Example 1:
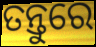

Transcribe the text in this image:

ତନ୍ତୁରେ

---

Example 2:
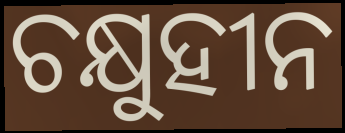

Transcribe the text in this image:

ଚକ୍ଷୁହୀନ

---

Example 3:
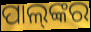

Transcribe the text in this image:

ପାଲ୍‍ଙ୍କର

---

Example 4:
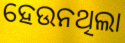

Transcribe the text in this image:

ହେଉନଥିଲା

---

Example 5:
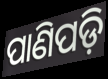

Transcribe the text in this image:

ପାଣିପଡ଼ି